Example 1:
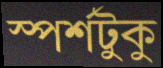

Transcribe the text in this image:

স্পর্শটুকু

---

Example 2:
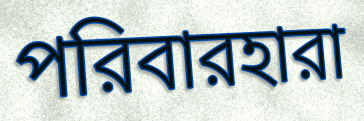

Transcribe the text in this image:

পরিবারহারা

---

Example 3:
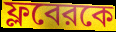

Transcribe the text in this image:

ফ্লবেরকে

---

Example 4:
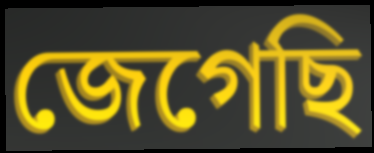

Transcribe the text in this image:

জেগেছি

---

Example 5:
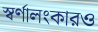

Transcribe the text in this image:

স্বর্ণালংকারও